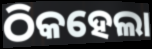
ଠିକହେଲା